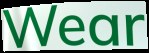
Wear